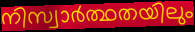
നിസ്വാർത്ഥതയിലും